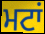
ਮਟਾਂ